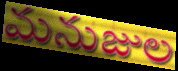
మనుజుల